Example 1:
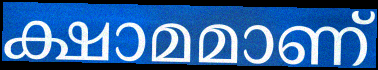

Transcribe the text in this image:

ക്ഷാമമാണ്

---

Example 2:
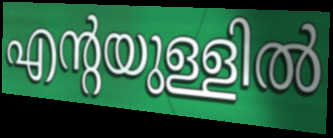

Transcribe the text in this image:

എന്റയുള്ളിൽ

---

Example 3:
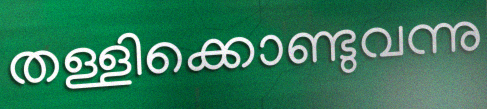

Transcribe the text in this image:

തള്ളിക്കൊണ്ടുവന്നു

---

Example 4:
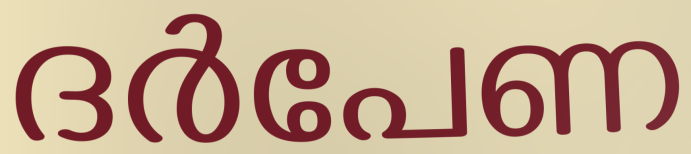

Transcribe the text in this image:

ദർപേണ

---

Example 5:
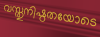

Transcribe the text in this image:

വസ്തുനിഷ്ഠതയോടെ